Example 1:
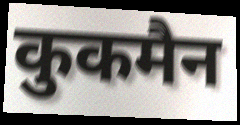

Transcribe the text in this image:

कुकमैन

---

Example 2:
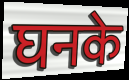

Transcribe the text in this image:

घनके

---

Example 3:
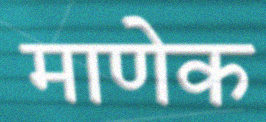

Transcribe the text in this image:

माणेक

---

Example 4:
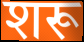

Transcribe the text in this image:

शरू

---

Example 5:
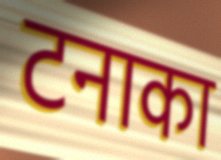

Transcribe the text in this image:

टनाका